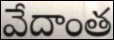
వేదాంత